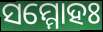
ସମ୍ମୋହଃ